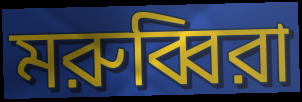
মরুব্বিরা